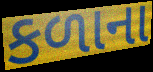
કળાના